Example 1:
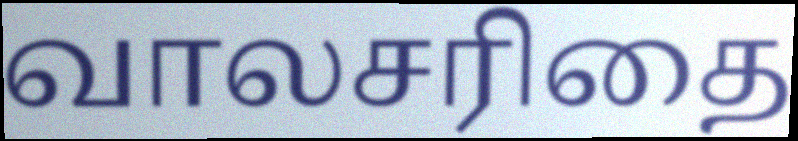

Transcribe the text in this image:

வாலசரிதை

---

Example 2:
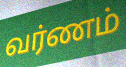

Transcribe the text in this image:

வர்ணம்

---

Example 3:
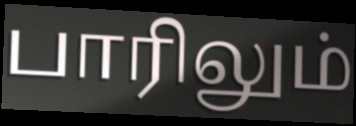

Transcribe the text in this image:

பாரிலும்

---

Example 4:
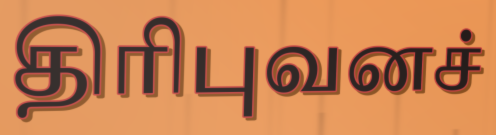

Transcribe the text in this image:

திரிபுவனச்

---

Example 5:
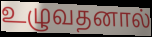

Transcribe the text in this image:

உழுவதனால்